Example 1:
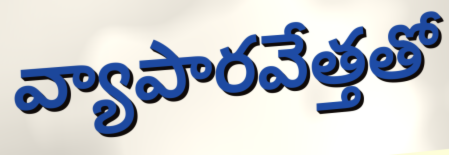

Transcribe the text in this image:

వ్యాపారవేత్తతో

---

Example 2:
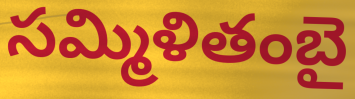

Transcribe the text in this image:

సమ్మిళితంబై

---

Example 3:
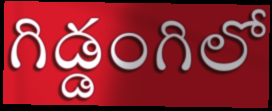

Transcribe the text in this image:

గిడ్డంగిలో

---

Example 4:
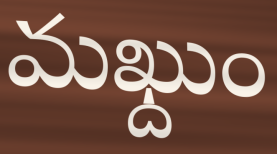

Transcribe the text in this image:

మఖ్దుం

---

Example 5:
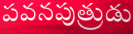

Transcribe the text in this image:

పవనపుత్రుడు